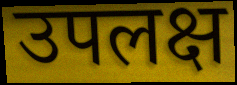
उपलक्ष